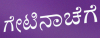
ಗೇಟಿನಾಚೆಗೆ